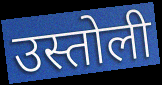
उस्तोली